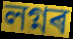
লগ্নৰ